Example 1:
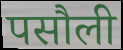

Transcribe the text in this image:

पसौली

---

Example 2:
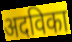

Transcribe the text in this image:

अदविका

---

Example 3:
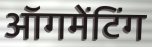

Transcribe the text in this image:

ऑगमेंटिंग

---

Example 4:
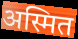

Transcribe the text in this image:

अस्मित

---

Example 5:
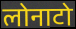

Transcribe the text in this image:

लोनाटो